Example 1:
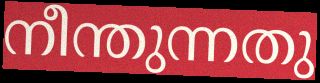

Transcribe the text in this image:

നീന്തുന്നതു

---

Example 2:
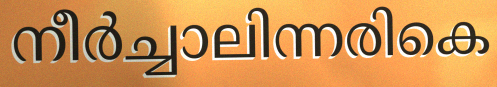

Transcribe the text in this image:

നീർച്ചാലിന്നരികെ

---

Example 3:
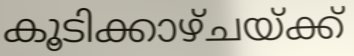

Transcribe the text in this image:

കൂടിക്കാഴ്ചയ്ക്ക്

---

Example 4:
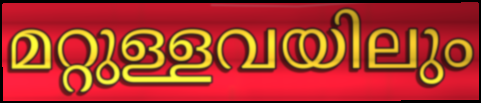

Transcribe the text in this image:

മറ്റുള്ളവയിലും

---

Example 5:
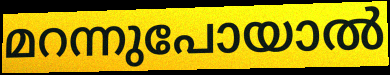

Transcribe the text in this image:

മറന്നുപോയാൽ